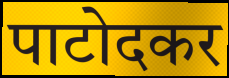
पाटोदकर